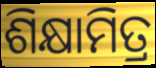
ଶିକ୍ଷାମିତ୍ର